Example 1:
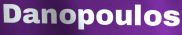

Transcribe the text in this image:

Danopoulos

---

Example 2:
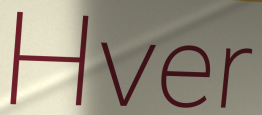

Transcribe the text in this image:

Hver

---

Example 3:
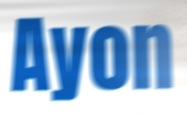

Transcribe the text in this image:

Ayon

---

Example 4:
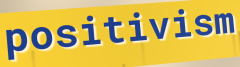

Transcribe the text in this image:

positivism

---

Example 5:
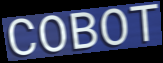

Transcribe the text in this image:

COBOT